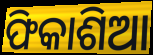
ଫିକାଶିଆ